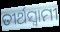
ତୀର୍ଥସ୍ୱାମୀ